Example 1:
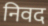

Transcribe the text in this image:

निवद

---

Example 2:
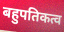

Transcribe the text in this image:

बहुपतिकत्व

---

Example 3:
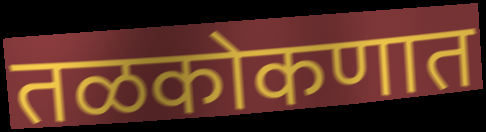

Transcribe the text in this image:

तळकोकणात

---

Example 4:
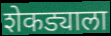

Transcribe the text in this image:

शेकड्याला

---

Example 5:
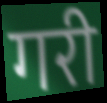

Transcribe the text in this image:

गरी